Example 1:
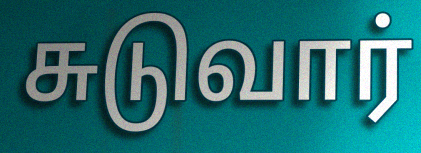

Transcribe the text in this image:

சுடுவார்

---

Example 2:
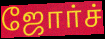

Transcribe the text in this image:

ஜோர்ச்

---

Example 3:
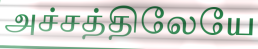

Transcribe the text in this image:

அச்சத்திலேயே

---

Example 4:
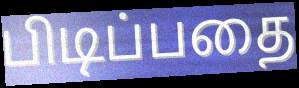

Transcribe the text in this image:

பிடிப்பதை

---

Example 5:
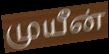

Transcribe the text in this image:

முயீன்